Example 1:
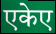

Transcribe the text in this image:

एकेए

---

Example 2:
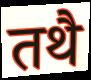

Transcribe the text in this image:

तथै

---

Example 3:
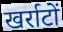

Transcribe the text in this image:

खर्राटों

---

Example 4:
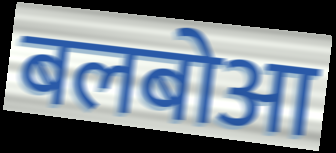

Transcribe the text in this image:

बलबोआ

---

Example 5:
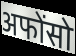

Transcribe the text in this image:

अफोंसो